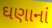
ઘણાનાં